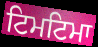
ਟਿਮਟਿਮਾ